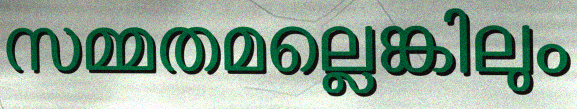
സമ്മതമല്ലെങ്കിലും